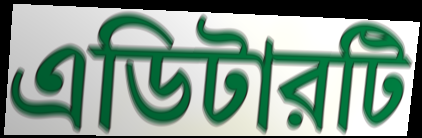
এডিটারটি